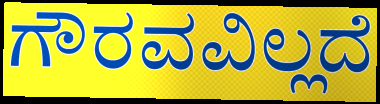
ಗೌರವವಿಲ್ಲದೆ